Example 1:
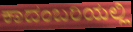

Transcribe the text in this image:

ಕಾದಂಬರಿಯಲ್ಲಿ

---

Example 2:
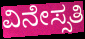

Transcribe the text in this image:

ವಿನೇಸ್ಸತಿ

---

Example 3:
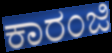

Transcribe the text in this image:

ಕಾರಂಜಿ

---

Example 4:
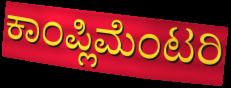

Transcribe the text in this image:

ಕಾಂಪ್ಲಿಮೆಂಟರಿ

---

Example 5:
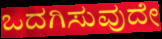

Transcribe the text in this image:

ಒದಗಿಸುವುದೇ